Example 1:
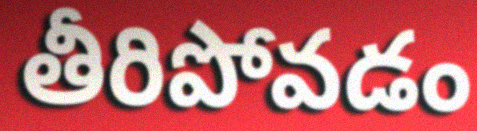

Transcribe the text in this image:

తీరిపోవడం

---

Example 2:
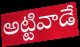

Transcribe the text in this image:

అట్టివాడే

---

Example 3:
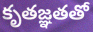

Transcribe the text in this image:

కృతజ్ఞతతో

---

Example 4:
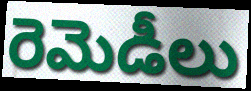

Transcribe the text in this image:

రెమెడీలు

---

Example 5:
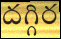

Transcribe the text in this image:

దగ్గిర